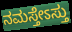
ನಮಸ್ತೇಽಸ್ತು